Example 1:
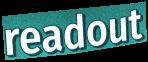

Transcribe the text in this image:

readout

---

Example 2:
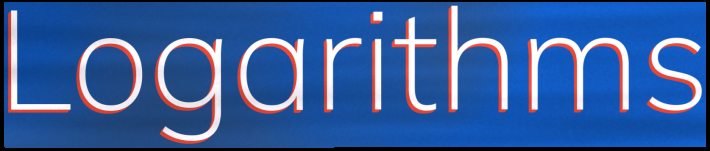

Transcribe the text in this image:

Logarithms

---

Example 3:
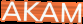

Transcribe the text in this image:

AKAM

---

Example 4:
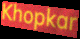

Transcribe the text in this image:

Khopkar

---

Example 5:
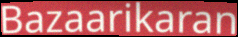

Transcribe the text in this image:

Bazaarikaran